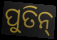
ପୁତିନ୍